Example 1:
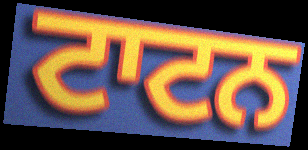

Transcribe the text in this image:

ਟਾਟਨ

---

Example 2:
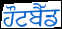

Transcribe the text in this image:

ਹੌਟਬੈੱਡ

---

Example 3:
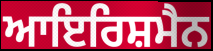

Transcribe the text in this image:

ਆਇਰਿਸ਼ਮੈਨ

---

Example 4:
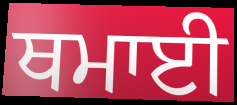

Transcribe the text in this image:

ਥਮਾਈ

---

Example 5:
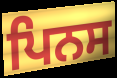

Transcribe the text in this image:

ਪਿਨਸ